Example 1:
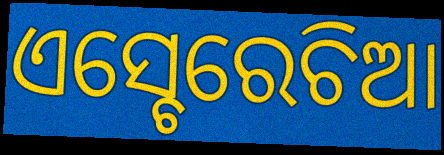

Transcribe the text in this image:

ଏସ୍ଚେରେଚିଆ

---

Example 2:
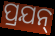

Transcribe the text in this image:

ପ୍ରଯନ୍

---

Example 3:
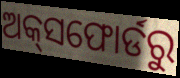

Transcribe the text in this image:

ଅକ୍‌ସଫୋର୍ଡରୁ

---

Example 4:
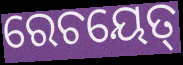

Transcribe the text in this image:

ରେଚୟେତ୍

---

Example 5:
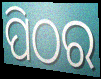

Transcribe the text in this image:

ପିଠର